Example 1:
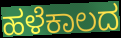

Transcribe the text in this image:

ಹಳೆಕಾಲದ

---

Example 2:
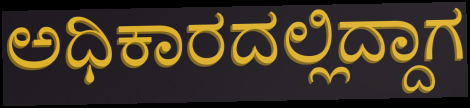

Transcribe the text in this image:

ಅಧಿಕಾರದಲ್ಲಿದ್ದಾಗ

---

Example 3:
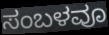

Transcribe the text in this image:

ಸಂಬಳವೂ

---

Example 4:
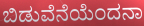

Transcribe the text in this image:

ಬಿಡುವೆನೆಯೆಂದನಾ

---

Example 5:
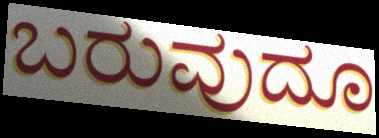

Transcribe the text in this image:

ಬರುವುದೂ